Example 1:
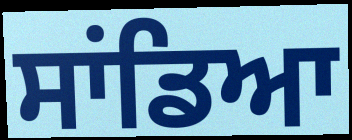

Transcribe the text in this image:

ਸਾਂਡਿਆ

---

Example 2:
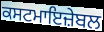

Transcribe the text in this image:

ਕਸਟਮਾਇਜ਼ੇਬਲ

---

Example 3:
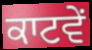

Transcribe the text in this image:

ਕਾਟਵੇਂ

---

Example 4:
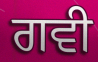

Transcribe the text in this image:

ਗਵੀ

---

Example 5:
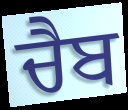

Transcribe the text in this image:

ਚੈਬ